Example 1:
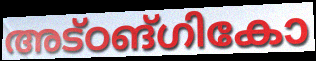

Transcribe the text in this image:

അട്ഠങ്ഗികോ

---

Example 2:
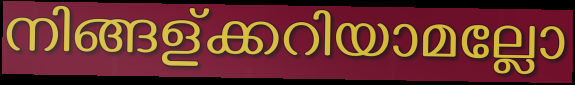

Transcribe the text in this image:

നിങ്ങള്ക്കറിയാമല്ലോ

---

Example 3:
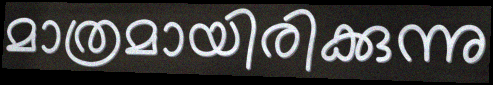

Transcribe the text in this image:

മാത്രമായിരിക്കുന്നു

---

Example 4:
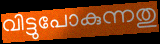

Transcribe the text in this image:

വിട്ടുപോകുന്നതു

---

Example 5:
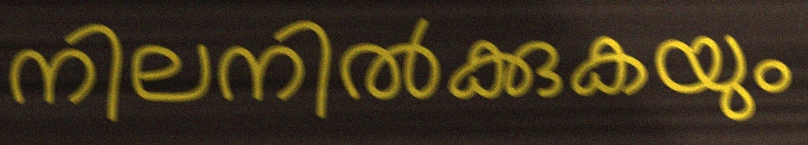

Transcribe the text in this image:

നിലനിൽക്കുകയും